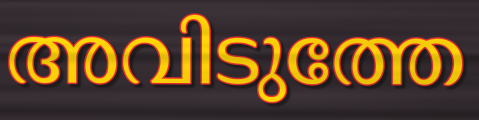
അവിടുത്തേ